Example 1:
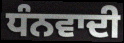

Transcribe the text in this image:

ਧੰਨਵਾਦੀ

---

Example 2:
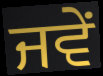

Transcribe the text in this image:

ਜਵੇਂ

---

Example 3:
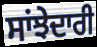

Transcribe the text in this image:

ਸਾਂਝੇਦਾਰੀ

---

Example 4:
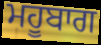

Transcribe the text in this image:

ਮਹੂਬਾਗ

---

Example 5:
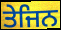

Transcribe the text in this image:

ਤੇਜਿਨ